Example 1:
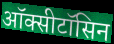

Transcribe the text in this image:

ऑक्सीटॉसिन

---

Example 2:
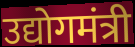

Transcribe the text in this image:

उद्योगमंत्री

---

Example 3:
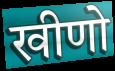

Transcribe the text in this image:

खीणो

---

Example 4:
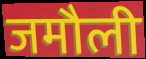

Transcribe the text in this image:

जमौली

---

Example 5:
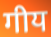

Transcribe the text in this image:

गीय